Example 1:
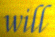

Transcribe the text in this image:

will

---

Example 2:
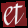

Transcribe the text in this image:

et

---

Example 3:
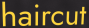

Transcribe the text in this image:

haircut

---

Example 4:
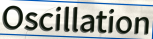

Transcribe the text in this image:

Oscillation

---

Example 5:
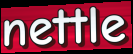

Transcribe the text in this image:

nettle